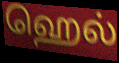
ஹெல்